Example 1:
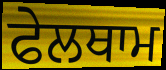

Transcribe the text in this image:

ਫੇਲਥਾਮ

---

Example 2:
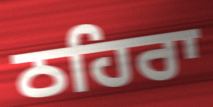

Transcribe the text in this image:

ਠਹਿਰਾ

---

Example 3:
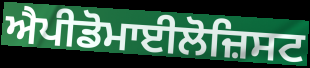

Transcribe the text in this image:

ਐਪੀਡੋਮਾਈਲੋਜ਼ਿਸਟ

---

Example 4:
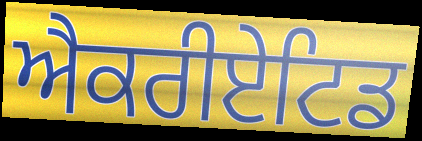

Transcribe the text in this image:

ਐਕਰੀਏਟਿਡ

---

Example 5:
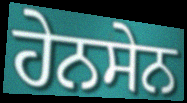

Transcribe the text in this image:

ਹੇਨਸੇਨ